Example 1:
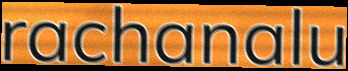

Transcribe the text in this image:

rachanalu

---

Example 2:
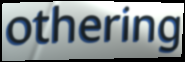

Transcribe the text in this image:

othering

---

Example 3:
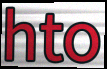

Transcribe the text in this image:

hto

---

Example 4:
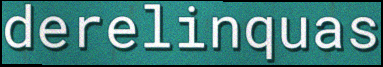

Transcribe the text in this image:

derelinquas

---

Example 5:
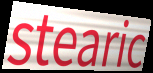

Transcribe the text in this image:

stearic